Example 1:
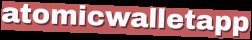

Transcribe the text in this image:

atomicwalletapp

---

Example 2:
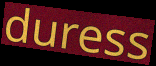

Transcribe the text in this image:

duress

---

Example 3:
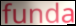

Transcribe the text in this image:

funda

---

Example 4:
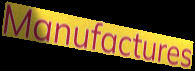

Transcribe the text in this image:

Manufactures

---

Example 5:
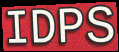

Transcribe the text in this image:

IDPS